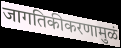
जागतिकीकरणामुळं